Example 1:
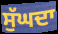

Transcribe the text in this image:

ਸੁੱਘਦਾ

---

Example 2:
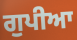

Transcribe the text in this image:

ਗੁਪੀਆ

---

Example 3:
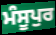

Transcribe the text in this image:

ਮੰਸੂਪੁਰ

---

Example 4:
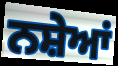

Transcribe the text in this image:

ਨਸ਼ੇਆਂ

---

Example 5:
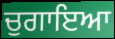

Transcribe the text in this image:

ਚੁਗਾਇਆ